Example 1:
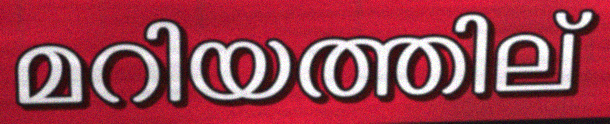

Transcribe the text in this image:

മറിയത്തില്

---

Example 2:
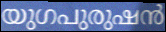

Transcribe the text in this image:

യുഗപുരുഷൻ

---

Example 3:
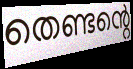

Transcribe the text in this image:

തെണ്ടന്റെ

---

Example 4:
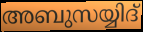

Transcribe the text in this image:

അബുസയ്യിദ്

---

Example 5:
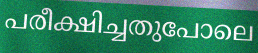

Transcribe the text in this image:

പരീക്ഷിച്ചതുപോലെ